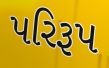
પરિરૂપ